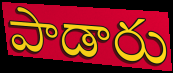
పాడారు